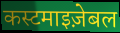
कस्टमाइज़ेबल